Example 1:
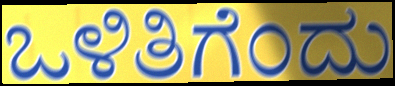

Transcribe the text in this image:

ಒಳಿತಿಗೆಂದು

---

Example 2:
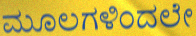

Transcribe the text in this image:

ಮೂಲಗಳಿಂದಲೇ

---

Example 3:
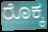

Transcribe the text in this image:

ರೊಕ್ಕ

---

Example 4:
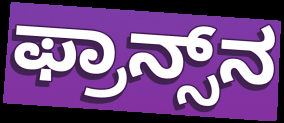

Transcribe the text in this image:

ಫ್ರಾನ್ಸ್‌ನ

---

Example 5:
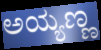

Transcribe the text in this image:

ಅಯ್ಯಣ್ಣ